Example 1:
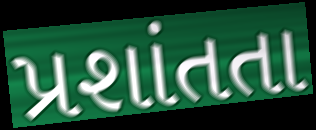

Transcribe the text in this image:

પ્રશાંતતા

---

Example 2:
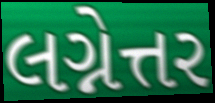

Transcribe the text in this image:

લગ્નેત્તર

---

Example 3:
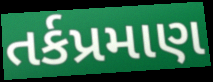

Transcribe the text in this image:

તર્કપ્રમાણ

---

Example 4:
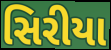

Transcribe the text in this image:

સિરીયા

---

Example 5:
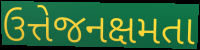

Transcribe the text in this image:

ઉત્તેજનક્ષમતા